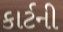
કાર્ટની